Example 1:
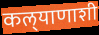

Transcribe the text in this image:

कल्याणाशी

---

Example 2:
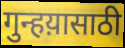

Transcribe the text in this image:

गुन्हय़ासाठी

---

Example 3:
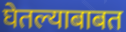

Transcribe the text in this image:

घेतल्याबाबत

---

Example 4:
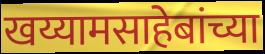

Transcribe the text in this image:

खय्यामसाहेबांच्या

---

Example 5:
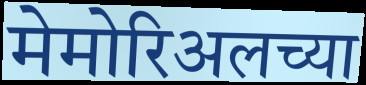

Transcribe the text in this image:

मेमोरिअलच्या